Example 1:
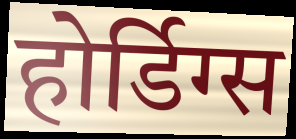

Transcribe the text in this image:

होर्डिग्स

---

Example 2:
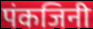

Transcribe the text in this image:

पंकजिनी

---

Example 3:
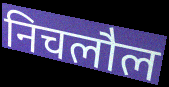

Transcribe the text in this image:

निचलौल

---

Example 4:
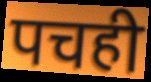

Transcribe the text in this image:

पचही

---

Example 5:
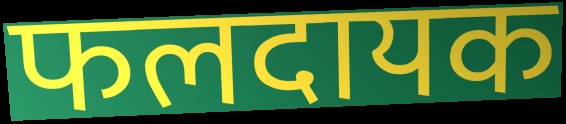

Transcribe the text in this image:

फलदायक